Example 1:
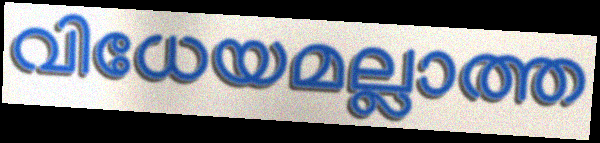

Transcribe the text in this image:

വിധേയമല്ലാത്ത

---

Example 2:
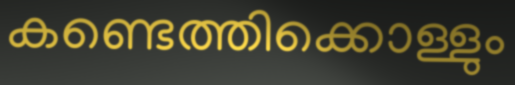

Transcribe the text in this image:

കണ്ടെത്തിക്കൊള്ളും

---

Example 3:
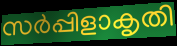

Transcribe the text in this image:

സർപ്പിളാകൃതി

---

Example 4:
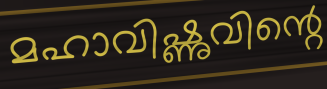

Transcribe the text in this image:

മഹാവിഷ്ണുവിന്റെ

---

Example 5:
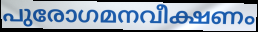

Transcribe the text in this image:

പുരോഗമനവീക്ഷണം